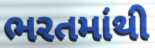
ભરતમાંથી